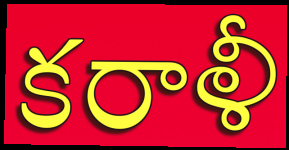
కరాళీ